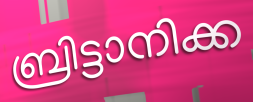
ബ്രിട്ടാനിക്ക